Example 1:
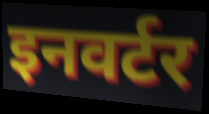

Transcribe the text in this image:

इनवर्टर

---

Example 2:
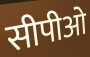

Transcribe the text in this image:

सीपीओ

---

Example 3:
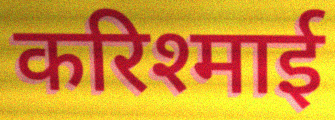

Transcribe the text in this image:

करिश्माई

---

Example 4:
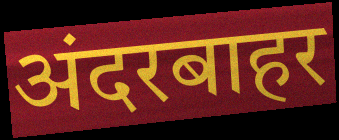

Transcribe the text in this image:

अंदरबाहर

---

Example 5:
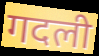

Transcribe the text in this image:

गदली